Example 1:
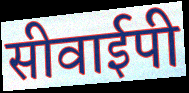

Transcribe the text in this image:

सीवाईपी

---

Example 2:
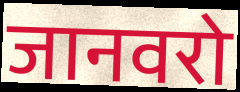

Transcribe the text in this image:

जानवरो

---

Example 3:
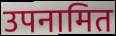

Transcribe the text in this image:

उपनामित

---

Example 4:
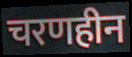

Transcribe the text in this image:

चरणहीन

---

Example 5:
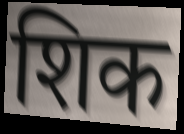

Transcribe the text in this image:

शिक